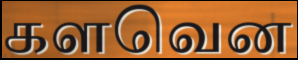
களவென